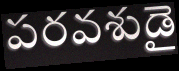
పరవశుడై